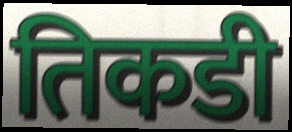
तिकडी